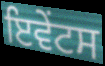
ਇਵੇੰਟਸ